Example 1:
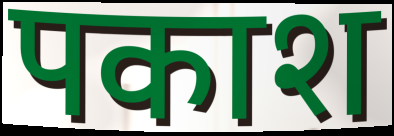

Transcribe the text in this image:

पकाश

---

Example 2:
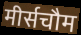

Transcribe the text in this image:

मीर्सचौम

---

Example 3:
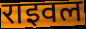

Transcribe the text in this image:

राइवल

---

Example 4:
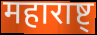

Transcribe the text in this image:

महाराष्ट्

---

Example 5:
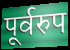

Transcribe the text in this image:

पूर्वरुप